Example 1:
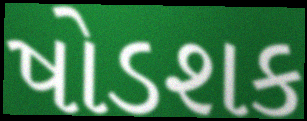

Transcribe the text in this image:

ષોડશક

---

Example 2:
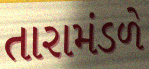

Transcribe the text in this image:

તારામંડળે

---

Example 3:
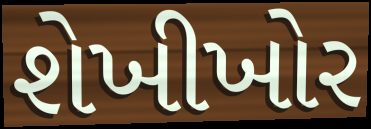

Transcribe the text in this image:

શેખીખોર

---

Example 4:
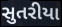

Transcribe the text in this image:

સુતરીયા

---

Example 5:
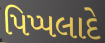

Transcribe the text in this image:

પિપ્પલાદે